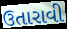
ઉતારાવી